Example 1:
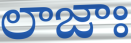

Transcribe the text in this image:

లాజాః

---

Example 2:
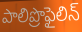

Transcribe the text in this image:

పాలిప్రొఫైలిన్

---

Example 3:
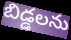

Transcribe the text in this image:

బిడ్డలను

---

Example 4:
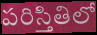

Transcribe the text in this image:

పరిస్తితిలో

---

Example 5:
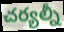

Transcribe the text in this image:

చర్యల్నీ